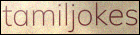
tamiljokes